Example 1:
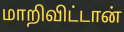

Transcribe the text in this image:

மாறிவிட்டான்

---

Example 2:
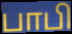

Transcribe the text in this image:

பாபி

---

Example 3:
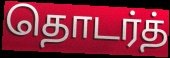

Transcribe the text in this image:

தொடர்த்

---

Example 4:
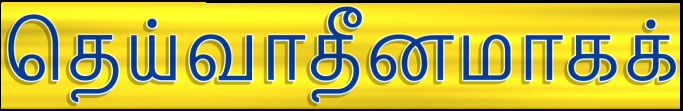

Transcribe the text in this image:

தெய்வாதீனமாகக்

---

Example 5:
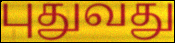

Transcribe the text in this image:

புதுவது